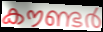
കൗണ്ടർ